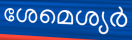
ശേമെശ്യർ